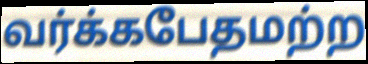
வர்க்கபேதமற்ற